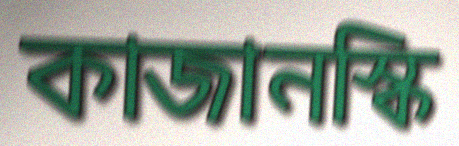
কাজানস্কি